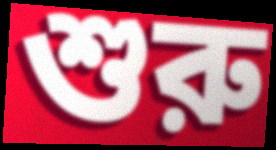
শুরু